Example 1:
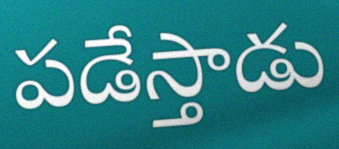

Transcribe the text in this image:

పడేస్తాడు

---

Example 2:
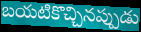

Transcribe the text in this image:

బయటికొచ్చినప్పుడు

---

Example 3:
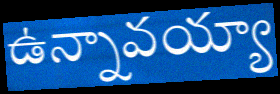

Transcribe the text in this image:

ఉన్నావయ్యా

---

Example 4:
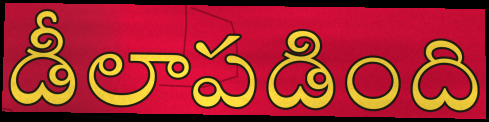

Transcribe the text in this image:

డీలాపడింది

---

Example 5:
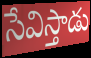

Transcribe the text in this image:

సేవిస్తాడు